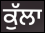
ਕੁੱਲਾ